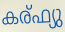
കര്ഫ്യു